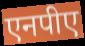
एनपीए